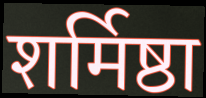
शर्मिष्ठा